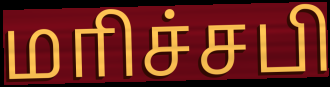
மரிச்சபி